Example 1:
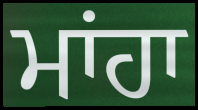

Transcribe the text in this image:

ਮਾਂਹਾ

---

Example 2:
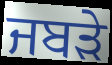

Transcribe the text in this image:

ਜਬੜੇ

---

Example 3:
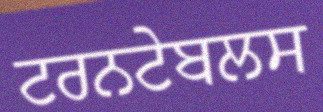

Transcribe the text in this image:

ਟਰਨਟੇਬਲਸ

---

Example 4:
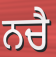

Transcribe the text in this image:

ਨਚੈ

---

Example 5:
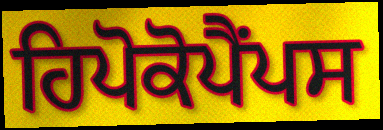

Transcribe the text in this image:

ਹਿਪੋਕੋਪੈਂਪਸ